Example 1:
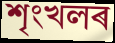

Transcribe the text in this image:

শৃংখলৰ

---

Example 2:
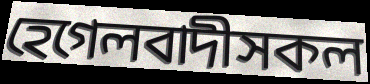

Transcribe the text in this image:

হেগেলবাদীসকল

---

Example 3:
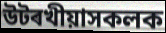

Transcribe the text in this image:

উটৰখীয়াসকলক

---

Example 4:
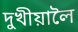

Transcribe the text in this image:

দুখীয়ালৈ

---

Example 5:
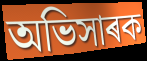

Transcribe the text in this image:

অভিসাৰক